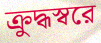
ক্রুদ্ধস্বরে